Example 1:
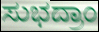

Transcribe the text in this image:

ಸುಭದ್ರಾಂ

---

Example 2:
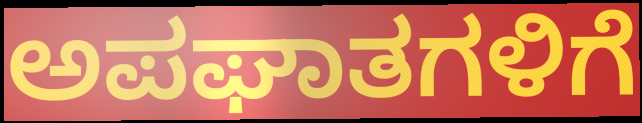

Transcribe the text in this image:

ಅಪಘಾತಗಳಿಗೆ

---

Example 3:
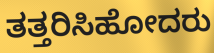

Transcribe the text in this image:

ತತ್ತರಿಸಿಹೋದರು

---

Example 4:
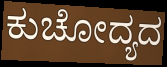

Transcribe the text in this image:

ಕುಚೋದ್ಯದ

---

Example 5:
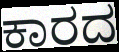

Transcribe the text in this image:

ಕಾರದ